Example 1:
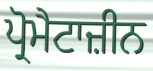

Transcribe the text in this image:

ਪ੍ਰੋਮੈਟਾਜ਼ੀਨ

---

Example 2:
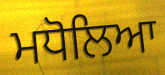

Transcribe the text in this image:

ਮਧੋਲਿਆ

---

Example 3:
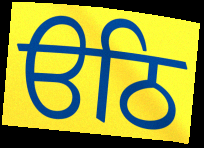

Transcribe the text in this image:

ੳਠਿ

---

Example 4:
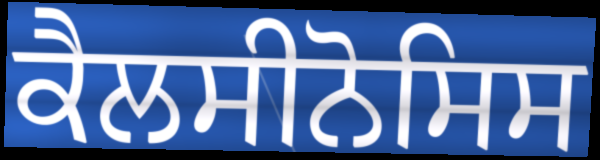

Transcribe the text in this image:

ਕੈਲਸੀਨੋਸਿਸ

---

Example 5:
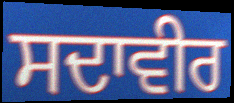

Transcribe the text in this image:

ਸਦਾਵੀਰ